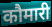
कौमारी